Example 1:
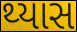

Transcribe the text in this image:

થ્યાસ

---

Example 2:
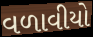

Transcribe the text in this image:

વળાવીયો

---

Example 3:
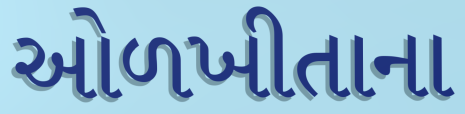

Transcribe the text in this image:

ઓળખીતાના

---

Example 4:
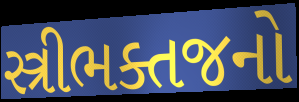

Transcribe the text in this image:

સ્ત્રીભક્તજનો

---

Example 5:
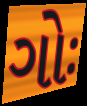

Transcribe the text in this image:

ગોઃ